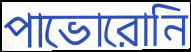
পাভোরোনি